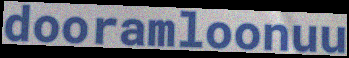
dooramloonuu